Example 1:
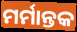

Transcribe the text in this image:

ମର୍ମାନ୍ତକ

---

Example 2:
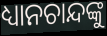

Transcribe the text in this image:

ଧ୍ୟାନଚାନ୍ଦଙ୍କୁ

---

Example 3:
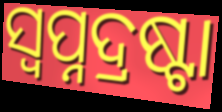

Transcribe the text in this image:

ସ୍ୱପ୍ନଦ୍ରଷ୍ଟା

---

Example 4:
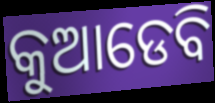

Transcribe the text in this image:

କୁଆଡେବି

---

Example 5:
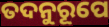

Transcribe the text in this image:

ତଦନୁରୂପେ